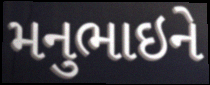
મનુભાઇને